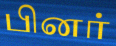
பினர்